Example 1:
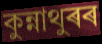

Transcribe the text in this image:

কুন্নাথুৰৰ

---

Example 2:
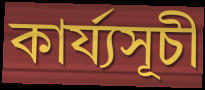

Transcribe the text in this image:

কাৰ্য্যসূচী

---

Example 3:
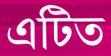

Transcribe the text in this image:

এটিত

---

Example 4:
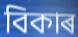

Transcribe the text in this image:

বিকাৰ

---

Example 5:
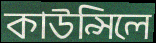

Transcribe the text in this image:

কাউন্সিলে